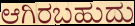
ಆಗಿರಬಹುದು